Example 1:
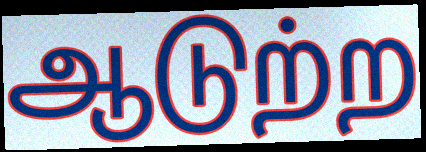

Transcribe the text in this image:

ஆடுற்ற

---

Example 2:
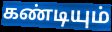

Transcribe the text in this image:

கண்டியும்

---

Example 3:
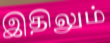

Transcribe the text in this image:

இதிலும்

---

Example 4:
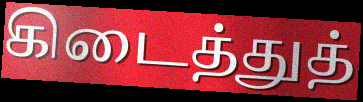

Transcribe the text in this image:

கிடைத்துத்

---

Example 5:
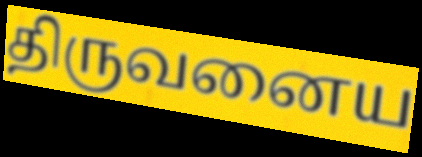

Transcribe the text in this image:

திருவனைய